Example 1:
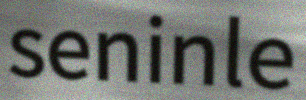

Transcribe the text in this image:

seninle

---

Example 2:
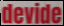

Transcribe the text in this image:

devide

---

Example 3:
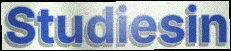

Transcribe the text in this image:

Studiesin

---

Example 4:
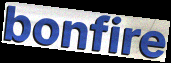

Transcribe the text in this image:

bonfire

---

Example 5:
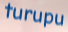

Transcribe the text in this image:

turupu